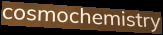
cosmochemistry